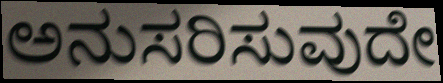
ಅನುಸರಿಸುವುದೇ